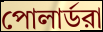
পোলার্ডরা